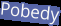
Pobedy